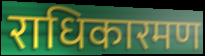
राधिकारमण